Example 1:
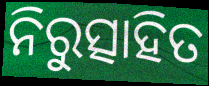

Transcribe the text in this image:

ନିରୁତ୍ସାହିତ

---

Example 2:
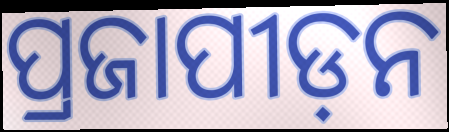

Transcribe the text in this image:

ପ୍ରଜାପୀଡ଼ନ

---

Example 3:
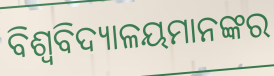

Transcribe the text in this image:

ବିଶ୍ଵବିଦ୍ୟାଳୟମାନଙ୍କର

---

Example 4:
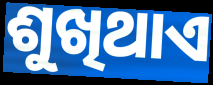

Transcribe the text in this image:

ଶୁଖିଥାଏ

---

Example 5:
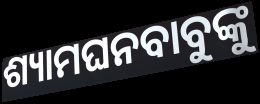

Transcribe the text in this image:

ଶ୍ୟାମଘନବାବୁଙ୍କୁ